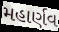
મહાર્ણવ